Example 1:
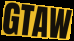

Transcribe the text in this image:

GTAW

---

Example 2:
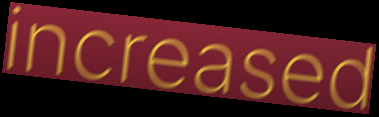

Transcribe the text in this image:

increased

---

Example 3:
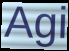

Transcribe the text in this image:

Agi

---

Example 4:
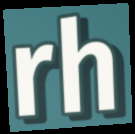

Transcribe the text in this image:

rh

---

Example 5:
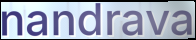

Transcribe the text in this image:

nandrava